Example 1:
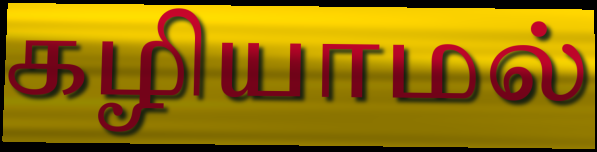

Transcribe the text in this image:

கழியாமல்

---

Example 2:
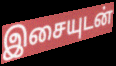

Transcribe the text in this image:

இசையுடன்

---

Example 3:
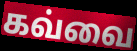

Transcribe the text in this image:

கவ்வை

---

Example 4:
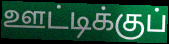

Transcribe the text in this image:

ஊட்டிக்குப்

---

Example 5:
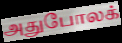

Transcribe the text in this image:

அதுபோலக்